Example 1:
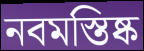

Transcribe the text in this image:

নবমস্তিষ্ক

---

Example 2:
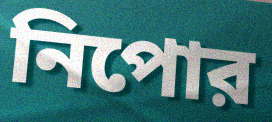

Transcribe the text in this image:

নিপোর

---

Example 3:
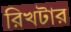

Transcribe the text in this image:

রিখটার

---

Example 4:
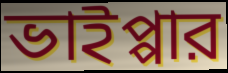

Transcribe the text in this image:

ভাইপ্পার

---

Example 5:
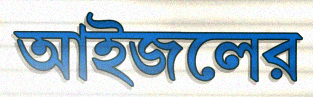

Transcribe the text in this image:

আইজলের